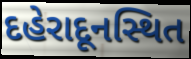
દહેરાદૂનસ્થિત